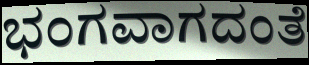
ಭಂಗವಾಗದಂತೆ